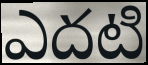
ఎదటి